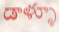
డాళ్ళూ